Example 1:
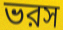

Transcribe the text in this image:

ভরস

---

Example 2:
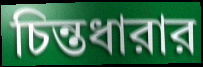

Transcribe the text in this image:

চিন্তধারার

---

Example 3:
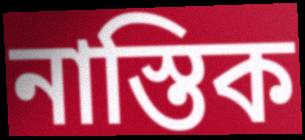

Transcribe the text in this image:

নাস্তিক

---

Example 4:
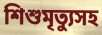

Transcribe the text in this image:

শিশুমৃত্যুসহ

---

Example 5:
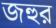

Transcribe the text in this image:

জহুর